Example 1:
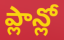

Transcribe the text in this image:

ప్లాన్లో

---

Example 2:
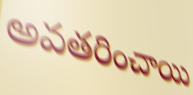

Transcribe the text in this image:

అవతరించాయి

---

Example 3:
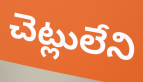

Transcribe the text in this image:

చెట్లులేని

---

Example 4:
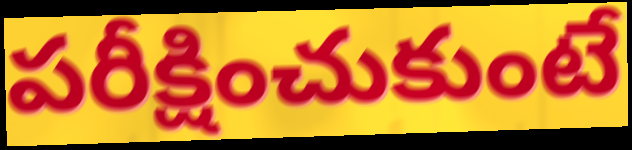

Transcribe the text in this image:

పరీక్షించుకుంటే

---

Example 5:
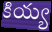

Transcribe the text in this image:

కియ్య